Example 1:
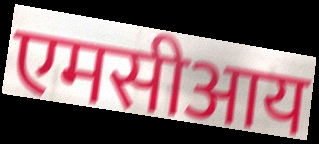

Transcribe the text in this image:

एमसीआय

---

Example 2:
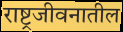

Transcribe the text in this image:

राष्ट्रजीवनातील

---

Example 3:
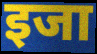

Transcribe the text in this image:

इजा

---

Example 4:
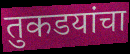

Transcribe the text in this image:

तुकडयांचा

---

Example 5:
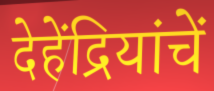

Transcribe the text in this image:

देहेंद्रियांचें